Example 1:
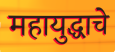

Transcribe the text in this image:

महायुद्धाचे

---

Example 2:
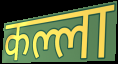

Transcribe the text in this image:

कल्ला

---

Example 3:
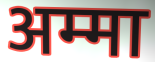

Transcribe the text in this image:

अम्मा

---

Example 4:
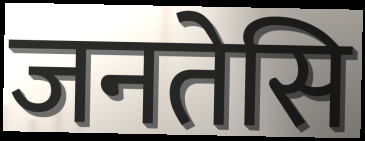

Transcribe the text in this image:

जनतेसि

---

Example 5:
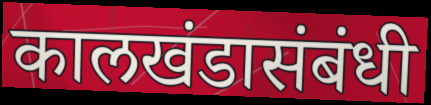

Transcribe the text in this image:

कालखंडासंबंधी